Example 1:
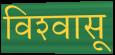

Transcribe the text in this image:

विश्वासू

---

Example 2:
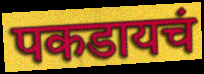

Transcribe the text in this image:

पकडायचं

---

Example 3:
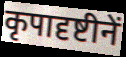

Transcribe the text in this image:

कृपादृष्टीनें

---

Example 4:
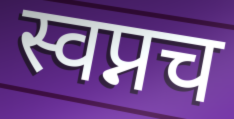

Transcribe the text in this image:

स्वप्नच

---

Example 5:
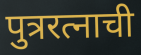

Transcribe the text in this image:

पुत्ररत्नाची